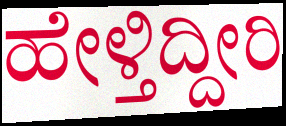
ಹೇಳ್ತಿದ್ದೀರಿ